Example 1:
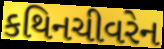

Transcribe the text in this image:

કથિનચીવરેન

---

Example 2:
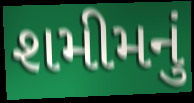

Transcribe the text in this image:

શમીમનું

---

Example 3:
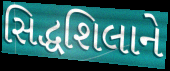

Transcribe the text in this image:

સિદ્ધશિલાને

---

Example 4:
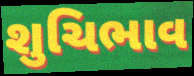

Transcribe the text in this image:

શુચિભાવ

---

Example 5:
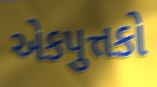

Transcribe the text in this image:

એકપુત્તકો